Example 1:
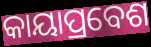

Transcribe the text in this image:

କାୟାପ୍ରବେଶ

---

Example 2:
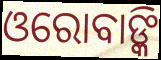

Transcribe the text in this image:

ଓରୋବାଙ୍କି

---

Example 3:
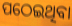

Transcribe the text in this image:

ପଠେଇଥିବା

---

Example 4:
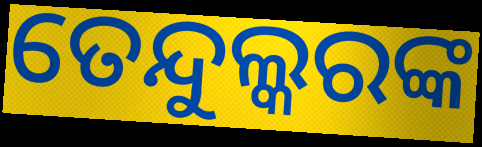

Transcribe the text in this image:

ତେନ୍ଦୁଲ୍କରଙ୍କ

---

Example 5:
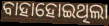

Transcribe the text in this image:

ବାହାହୋଇଥିଲା